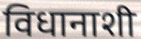
विधानाशी